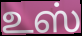
உஸ்